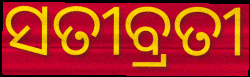
ସତୀବ୍ରତୀ